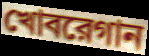
খোবরেগান